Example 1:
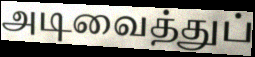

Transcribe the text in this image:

அடிவைத்துப்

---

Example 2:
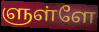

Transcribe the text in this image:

ளுள்ளே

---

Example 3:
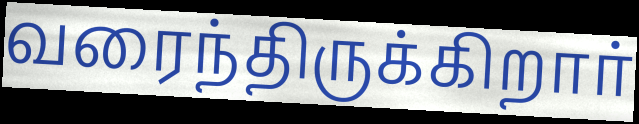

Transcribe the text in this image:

வரைந்திருக்கிறார்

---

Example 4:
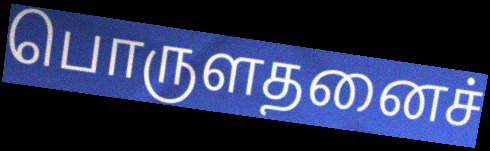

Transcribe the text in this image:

பொருளதனைச்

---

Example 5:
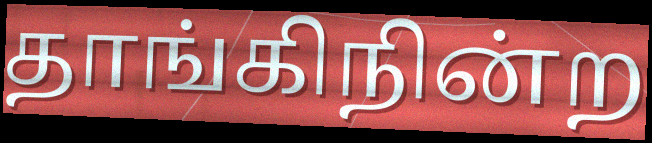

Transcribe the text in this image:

தாங்கிநின்ற